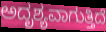
ಅದೃಶ್ಯವಾಗುತ್ತಿದೆ